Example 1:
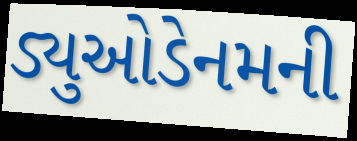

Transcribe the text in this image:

ડ્યુઓડેનમની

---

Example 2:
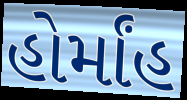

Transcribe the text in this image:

હોર્માંહ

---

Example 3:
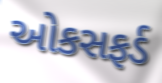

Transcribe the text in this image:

ઓકસફર્ડ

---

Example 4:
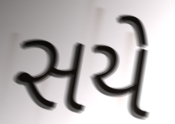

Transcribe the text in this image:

સયે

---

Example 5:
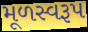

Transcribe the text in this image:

મૂળસ્વરૂપ